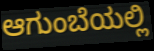
ಆಗುಂಬೆಯಲ್ಲಿ